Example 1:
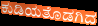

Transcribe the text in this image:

ಕುಡಿಯತೊಡಗಿದ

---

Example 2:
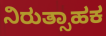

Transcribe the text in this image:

ನಿರುತ್ಸಾಹಕ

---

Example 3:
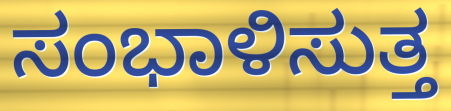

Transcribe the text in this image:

ಸಂಭಾಳಿಸುತ್ತ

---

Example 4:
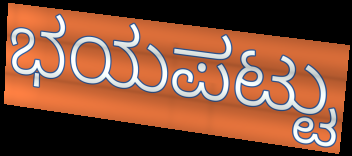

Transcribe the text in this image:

ಭಯಪಟ್ಟು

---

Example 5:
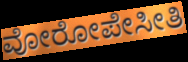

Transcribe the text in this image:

ವೋರೋಪೇಸೀತಿ